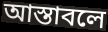
আস্তাবলে